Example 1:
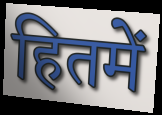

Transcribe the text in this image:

हितमें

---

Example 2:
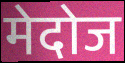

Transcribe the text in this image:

मेदोज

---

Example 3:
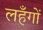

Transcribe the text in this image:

लहँगों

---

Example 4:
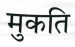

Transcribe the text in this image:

मुकति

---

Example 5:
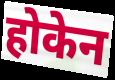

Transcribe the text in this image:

होकेन